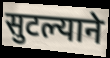
सुटल्याने